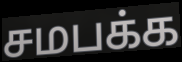
சமபக்க